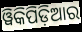
ୱିକିପିଡ଼ିଆର